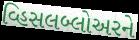
વ્હિસલબ્લોઅરને